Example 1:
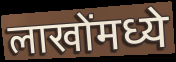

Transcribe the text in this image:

लाखोंमध्ये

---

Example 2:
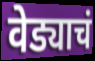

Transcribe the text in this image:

वेड्याचं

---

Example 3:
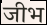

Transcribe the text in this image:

जीभ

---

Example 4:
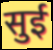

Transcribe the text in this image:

सुई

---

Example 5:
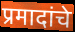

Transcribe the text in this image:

प्रमादांचे